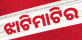
ଝାଟିମାଟିର